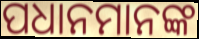
ପଧାନମାନଙ୍କ